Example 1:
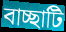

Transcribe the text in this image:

বাচ্ছাটি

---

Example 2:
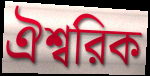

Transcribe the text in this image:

ঐশ্বরিক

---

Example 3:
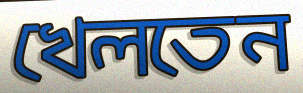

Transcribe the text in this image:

খেলতেন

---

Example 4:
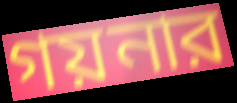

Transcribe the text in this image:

গয়নার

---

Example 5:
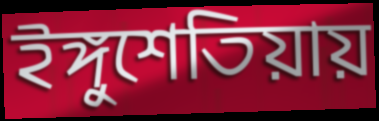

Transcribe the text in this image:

ইঙ্গুশেতিয়ায়